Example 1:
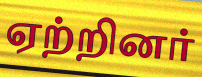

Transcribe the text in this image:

ஏற்றினர்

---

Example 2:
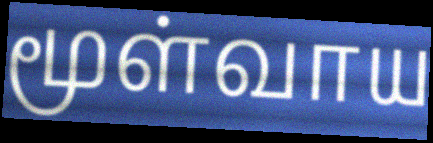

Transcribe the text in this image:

மூள்வாய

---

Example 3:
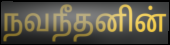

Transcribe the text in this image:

நவநீதனின்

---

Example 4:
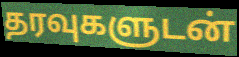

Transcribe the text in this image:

தரவுகளுடன்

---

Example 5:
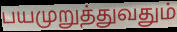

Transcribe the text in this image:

பயமுறுத்துவதும்